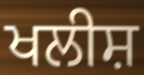
ਖਲੀਸ਼